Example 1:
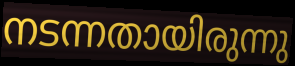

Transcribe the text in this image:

നടന്നതായിരുന്നു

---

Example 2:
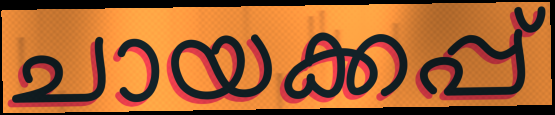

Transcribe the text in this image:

ചായക്കപ്പ്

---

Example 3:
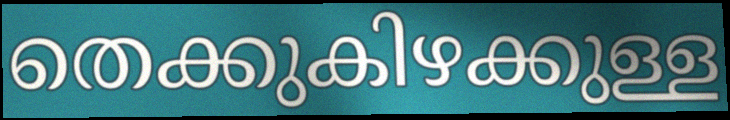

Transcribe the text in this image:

തെക്കുകിഴക്കുള്ള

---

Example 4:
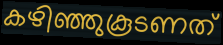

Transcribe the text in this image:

കഴിഞ്ഞുകൂടണത്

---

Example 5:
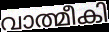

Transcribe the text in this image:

വാത്മീകി